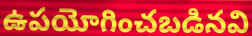
ఉపయోగించబడినవి